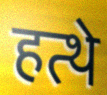
हत्थे